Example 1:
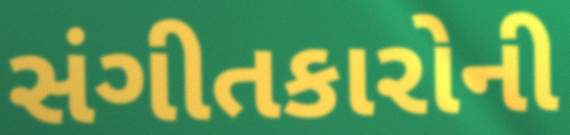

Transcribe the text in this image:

સંગીતકારોની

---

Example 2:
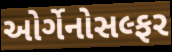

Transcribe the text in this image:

ઓર્ગેનોસલ્ફર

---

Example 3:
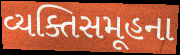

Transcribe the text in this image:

વ્યક્તિસમૂહના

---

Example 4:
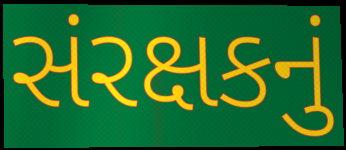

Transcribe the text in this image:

સંરક્ષકનું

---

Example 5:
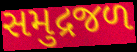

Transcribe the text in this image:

સમુદ્રજળ